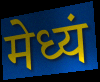
मेध्यं